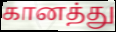
கானத்து